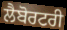
ਲੈਬੋਰਟਰੀ